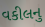
વકીલનુ